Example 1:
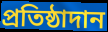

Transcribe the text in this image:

প্রতিষ্ঠাদান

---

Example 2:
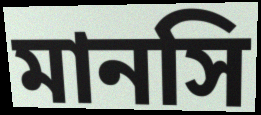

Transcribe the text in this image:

মানসি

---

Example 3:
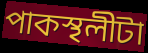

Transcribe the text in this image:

পাকস্থলীটা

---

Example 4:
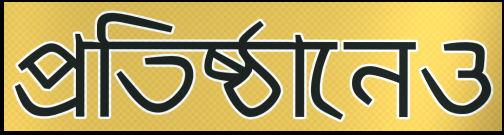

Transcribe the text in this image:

প্রতিষ্ঠানেও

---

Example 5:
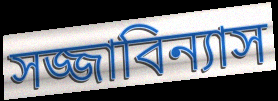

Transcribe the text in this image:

সজ্জাবিন্যাস